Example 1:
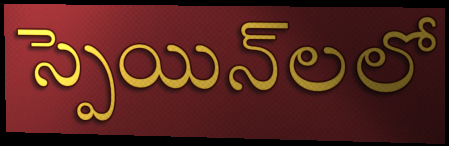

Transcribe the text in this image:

స్పెయిన్‌లలో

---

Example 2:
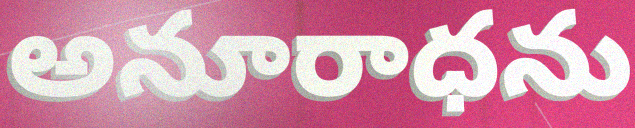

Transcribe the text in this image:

అనూరాధను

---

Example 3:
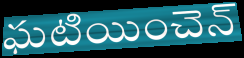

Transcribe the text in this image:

ఘటియించెన్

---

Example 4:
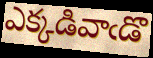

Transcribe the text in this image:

ఎక్కడివాఁడొ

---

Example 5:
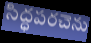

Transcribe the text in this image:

సిద్ధపరచెను